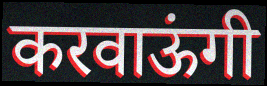
करवाऊंगी